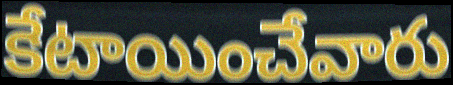
కేటాయించేవారు